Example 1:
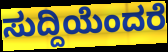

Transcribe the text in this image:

ಸುದ್ದಿಯೆಂದರೆ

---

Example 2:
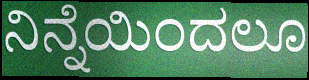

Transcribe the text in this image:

ನಿನ್ನೆಯಿಂದಲೂ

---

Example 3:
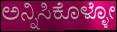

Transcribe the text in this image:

ಅನ್ನಿಸಿಕೊಳ್ಳೋ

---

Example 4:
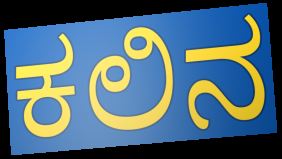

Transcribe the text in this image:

ಕಲಿನ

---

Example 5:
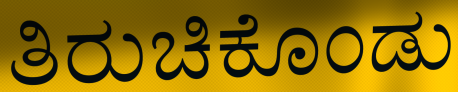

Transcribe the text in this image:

ತಿರುಚಿಕೊಂಡು